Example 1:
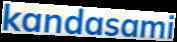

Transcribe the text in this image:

kandasami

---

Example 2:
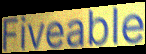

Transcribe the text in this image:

Fiveable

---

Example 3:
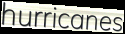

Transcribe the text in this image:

hurricanes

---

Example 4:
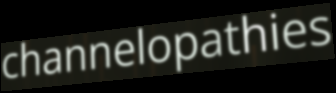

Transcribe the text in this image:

channelopathies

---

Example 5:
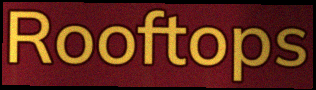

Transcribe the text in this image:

Rooftops